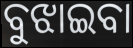
ବୁଝାଇବା